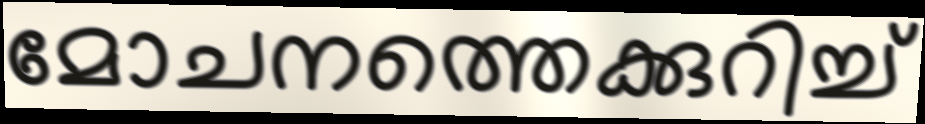
മോചനത്തെക്കുറിച്ച്